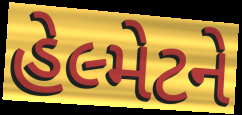
હેલ્મેટને